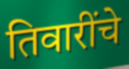
तिवारींचे